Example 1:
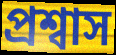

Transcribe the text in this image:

প্রশ্বাস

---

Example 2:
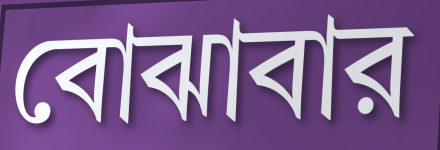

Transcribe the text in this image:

বোঝাবার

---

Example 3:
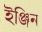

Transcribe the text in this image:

ইঞ্জিন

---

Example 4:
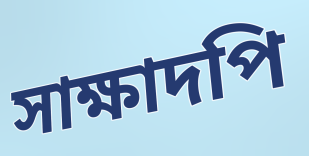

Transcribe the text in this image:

সাক্ষাদপি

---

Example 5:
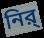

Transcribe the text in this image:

নির্